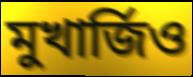
মুখার্জিও